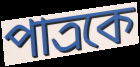
পাত্রকে